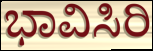
ಭಾವಿಸಿರಿ